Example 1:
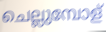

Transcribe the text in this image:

ചെല്ലുമ്പോള്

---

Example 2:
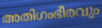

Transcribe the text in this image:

അതിഗംഭീരവും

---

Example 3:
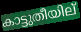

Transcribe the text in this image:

കാട്ടുതീയില്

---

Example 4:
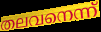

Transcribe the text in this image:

തലവനെന്ന്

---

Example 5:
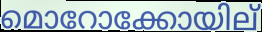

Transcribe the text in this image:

മൊറോക്കോയില്